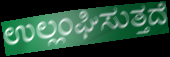
ಉಲ್ಲಂಘಿಸುತ್ತದೆ